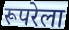
रूपरेला